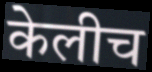
केलीच